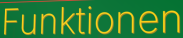
Funktionen